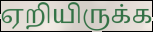
ஏறியிருக்க